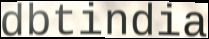
dbtindia